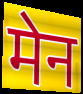
मेन